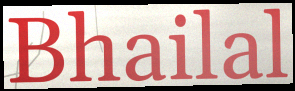
Bhailal